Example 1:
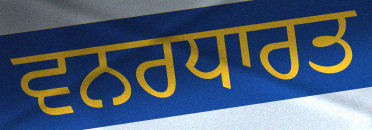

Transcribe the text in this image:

ਵਨਰਧਾਰਤ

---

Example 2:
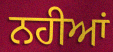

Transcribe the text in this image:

ਨਹੀਆਂ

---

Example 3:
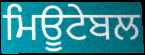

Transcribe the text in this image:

ਮਿਊਟੇਬਲ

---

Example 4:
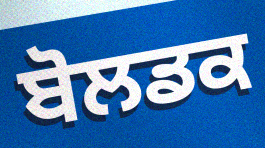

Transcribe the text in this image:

ਬੋਲਡਕ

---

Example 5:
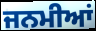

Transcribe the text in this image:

ਜਨਮੀਆਂ